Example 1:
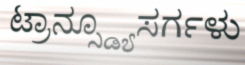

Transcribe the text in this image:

ಟ್ರಾನ್ಸ್ಡ್ಯೂಸರ್ಗಳು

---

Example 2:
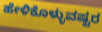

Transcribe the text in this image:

ಹೇಳಿಕೊಳ್ಳುವಷ್ಟರ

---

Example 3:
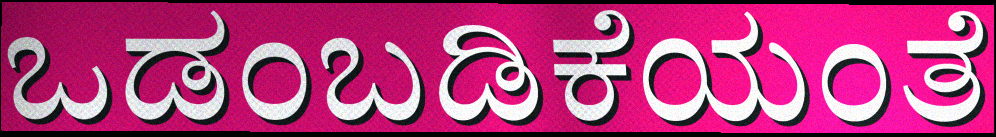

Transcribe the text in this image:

ಒಡಂಬಡಿಕೆಯಂತೆ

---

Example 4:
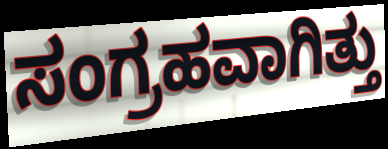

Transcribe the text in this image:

ಸಂಗ್ರಹವಾಗಿತ್ತು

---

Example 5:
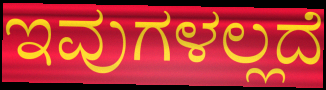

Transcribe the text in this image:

ಇವುಗಳಲ್ಲದೆ